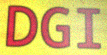
DGI